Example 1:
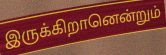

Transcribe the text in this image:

இருக்கிறானென்றும்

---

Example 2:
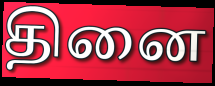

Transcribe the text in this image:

தினை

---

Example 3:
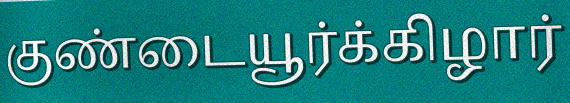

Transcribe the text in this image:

குண்டையூர்க்கிழார்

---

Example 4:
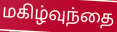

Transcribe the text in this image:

மகிழ்வுந்தை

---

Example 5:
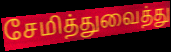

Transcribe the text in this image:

சேமித்துவைத்து